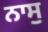
ਨਾਸੁ